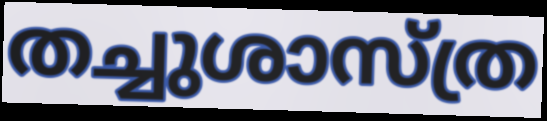
തച്ചുശാസ്ത്ര